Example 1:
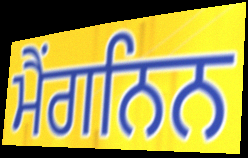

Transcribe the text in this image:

ਮੈਂਗਨਿਨ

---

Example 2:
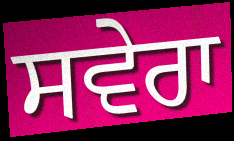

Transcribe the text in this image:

ਸਵੇਰਾ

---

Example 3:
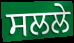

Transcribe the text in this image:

ਸਲਲੇ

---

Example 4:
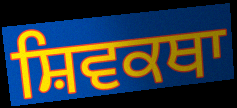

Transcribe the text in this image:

ਸ਼ਿਵਕਥਾ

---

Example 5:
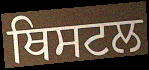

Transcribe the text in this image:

ਥਿਸਟਲ